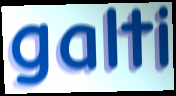
galti